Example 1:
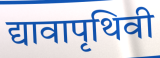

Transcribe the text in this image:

द्यावापृथिवी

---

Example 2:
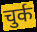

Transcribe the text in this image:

चुर्क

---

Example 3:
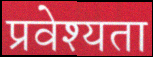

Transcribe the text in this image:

प्रवेश्यता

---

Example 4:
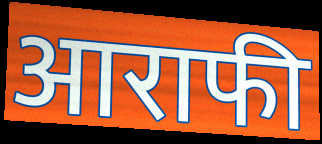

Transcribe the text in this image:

आराफी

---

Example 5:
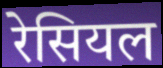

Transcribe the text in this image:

रेसियल